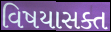
વિષયાસક્ત